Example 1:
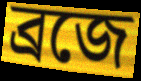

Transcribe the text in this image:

ব্রজে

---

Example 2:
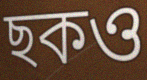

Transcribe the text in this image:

ছকও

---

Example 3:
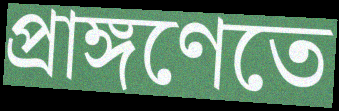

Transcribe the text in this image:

প্রাঙ্গণেতে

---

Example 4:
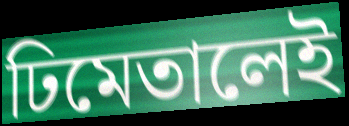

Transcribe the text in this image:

ঢিমেতালেই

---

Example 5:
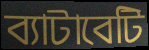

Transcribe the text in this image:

ব্যাটাবেটি